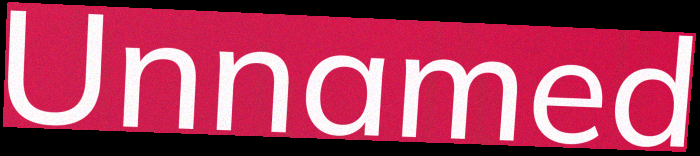
Unnamed